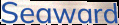
Seaward